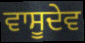
ਵਾਸੂਦੇਵ